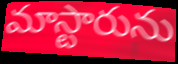
మాస్టారును